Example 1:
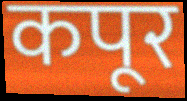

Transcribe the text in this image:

कपूर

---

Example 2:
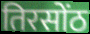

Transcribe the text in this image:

तिरसोंठ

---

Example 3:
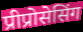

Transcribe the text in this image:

प्रीप्रोसेसिंग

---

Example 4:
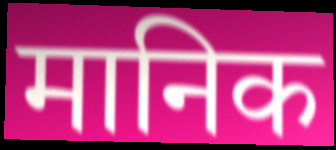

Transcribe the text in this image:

मानिक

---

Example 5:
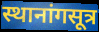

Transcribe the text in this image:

स्थानांगसूत्र